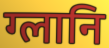
ग्लानि